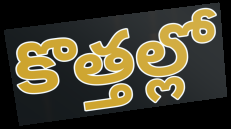
కొత్తల్లో